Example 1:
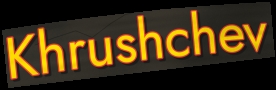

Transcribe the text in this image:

Khrushchev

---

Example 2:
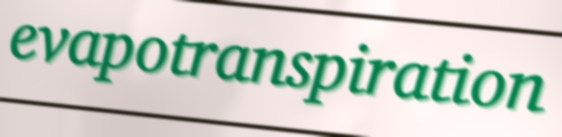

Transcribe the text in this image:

evapotranspiration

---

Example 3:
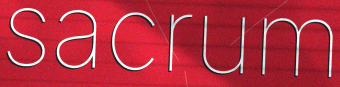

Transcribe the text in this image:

sacrum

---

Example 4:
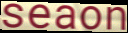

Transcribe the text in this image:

seaon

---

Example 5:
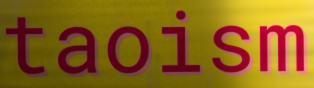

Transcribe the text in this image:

taoism